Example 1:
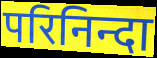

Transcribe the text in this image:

परिनिन्दा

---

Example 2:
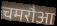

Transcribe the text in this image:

चमरौआ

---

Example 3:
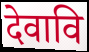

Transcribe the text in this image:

देवावि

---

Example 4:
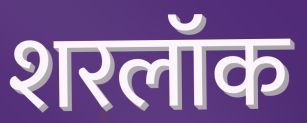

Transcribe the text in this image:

शरलॉक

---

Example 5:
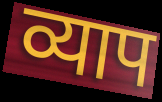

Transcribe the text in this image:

व्याप